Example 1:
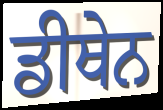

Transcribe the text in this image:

ਡੀਥੇਨ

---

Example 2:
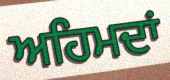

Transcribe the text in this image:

ਅਹਿਮਦਾਂ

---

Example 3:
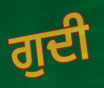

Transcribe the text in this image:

ਗੁਦੀ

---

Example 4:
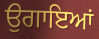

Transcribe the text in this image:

ਉਗਾਇਆਂ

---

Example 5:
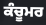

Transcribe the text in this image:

ਕੰਚੂਮਰ